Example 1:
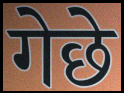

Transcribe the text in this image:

गेछे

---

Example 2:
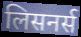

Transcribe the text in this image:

लिसनर्स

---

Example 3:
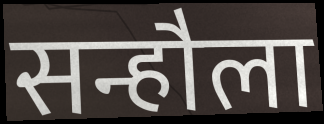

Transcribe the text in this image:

सन्हौला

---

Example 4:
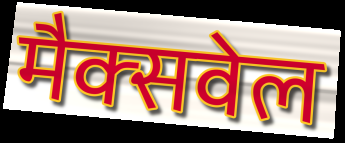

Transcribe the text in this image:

मैक्‍सवेल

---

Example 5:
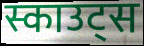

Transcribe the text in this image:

स्काउट्स